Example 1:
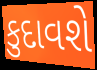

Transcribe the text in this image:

કુદાવશે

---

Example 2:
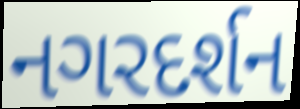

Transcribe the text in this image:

નગરદર્શન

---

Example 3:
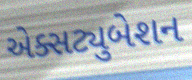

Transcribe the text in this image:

એક્સટ્યુબેશન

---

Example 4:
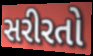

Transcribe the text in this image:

સરીરતો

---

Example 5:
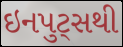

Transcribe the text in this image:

ઇનપુટ્સથી